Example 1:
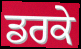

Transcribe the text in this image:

ਡਰਕੇ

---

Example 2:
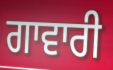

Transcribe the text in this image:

ਗਾਵਾਰੀ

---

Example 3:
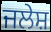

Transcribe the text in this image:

ਜਲੇਸ਼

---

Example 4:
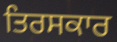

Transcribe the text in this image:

ਤਿਰਸਕਾਰ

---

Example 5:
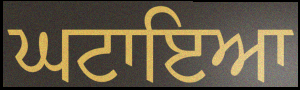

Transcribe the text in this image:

ਘਟਾਇਆ